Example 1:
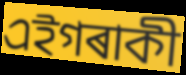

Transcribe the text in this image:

এইগৰাকী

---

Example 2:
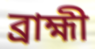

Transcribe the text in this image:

ব্ৰাহ্মী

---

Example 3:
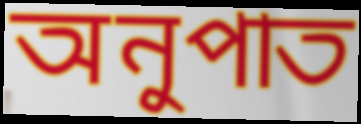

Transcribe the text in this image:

অনুপাত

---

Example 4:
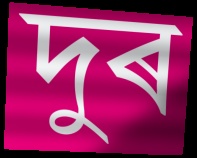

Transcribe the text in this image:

দুৰ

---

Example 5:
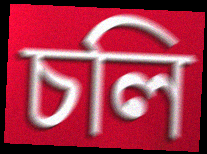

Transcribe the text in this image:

চলি